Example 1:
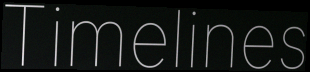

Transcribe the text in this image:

Timelines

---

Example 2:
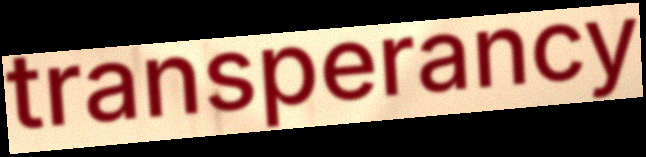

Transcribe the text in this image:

transperancy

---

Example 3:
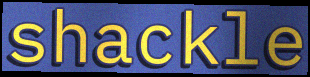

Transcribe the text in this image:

shackle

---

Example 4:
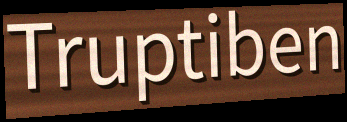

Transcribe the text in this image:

Truptiben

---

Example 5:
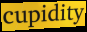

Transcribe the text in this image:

cupidity